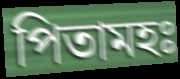
পিতামহঃ